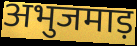
अभुजमाड़